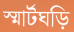
স্মার্টঘড়ি